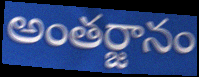
అంతర్జానం